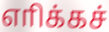
எரிக்கச்